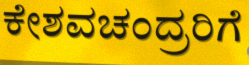
ಕೇಶವಚಂದ್ರರಿಗೆ